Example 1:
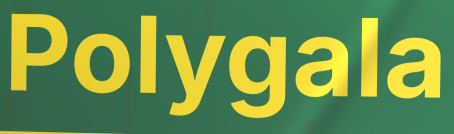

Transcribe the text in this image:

Polygala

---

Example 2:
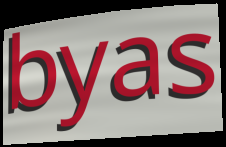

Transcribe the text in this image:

byas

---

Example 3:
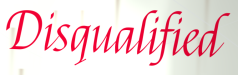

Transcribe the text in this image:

Disqualified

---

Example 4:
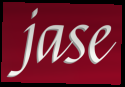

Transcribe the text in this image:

jase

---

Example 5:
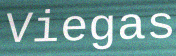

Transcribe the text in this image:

Viegas